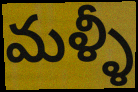
మళ్ళీ